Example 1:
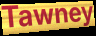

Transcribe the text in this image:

Tawney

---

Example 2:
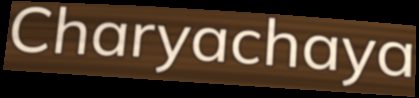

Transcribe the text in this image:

Charyachaya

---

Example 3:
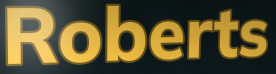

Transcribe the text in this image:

Roberts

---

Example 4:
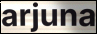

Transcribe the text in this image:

arjuna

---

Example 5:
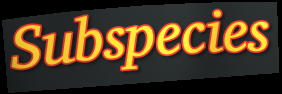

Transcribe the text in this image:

Subspecies